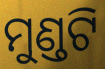
ମୁଣ୍ଡଟି